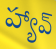
హ్యావ్